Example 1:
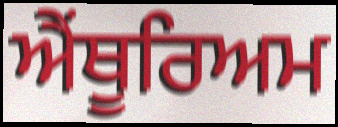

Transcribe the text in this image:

ਐਂਥੂਰਿਅਮ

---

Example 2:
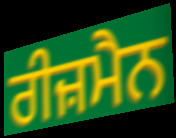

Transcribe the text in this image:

ਰੀਜ਼ਮੈਨ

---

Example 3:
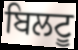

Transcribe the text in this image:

ਬਿਲਟੂ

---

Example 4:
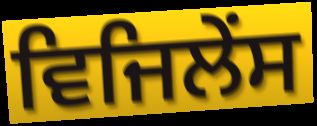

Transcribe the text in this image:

ਵਿਜਿਲੇਂਸ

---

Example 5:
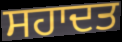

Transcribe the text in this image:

ਸਹਾਦਤ